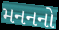
મનનનો